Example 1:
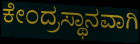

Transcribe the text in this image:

ಕೇಂದ್ರಸ್ಥಾನವಾಗಿ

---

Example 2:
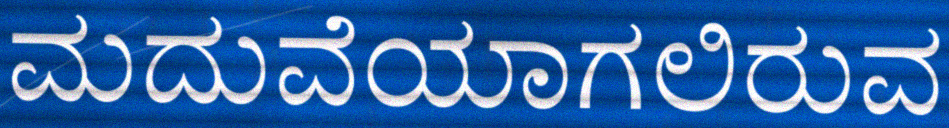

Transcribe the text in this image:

ಮದುವೆಯಾಗಲಿರುವ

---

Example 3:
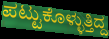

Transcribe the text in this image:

ಪಟ್ಟುಕೊಳ್ಳುತ್ತಿದ್ದ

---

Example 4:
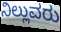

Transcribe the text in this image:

ನಿಲ್ಲುವರು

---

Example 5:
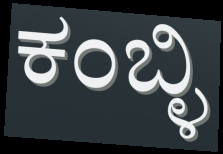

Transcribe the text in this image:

ಕಂಬ್ಳಿ